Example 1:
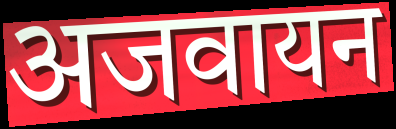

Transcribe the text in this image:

अजवायन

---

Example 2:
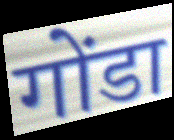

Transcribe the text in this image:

गोंडा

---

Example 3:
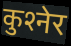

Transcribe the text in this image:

कुश्नेर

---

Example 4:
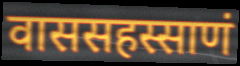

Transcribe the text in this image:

वाससहस्साणं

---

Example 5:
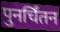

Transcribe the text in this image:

पुनर्चिंतन